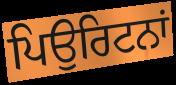
ਪਿਉਰਿਟਨਾਂ